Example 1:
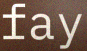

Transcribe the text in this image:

fay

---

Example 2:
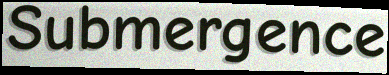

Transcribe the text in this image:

Submergence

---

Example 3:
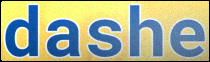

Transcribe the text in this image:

dashe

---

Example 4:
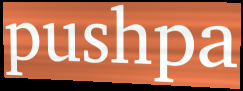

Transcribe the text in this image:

pushpa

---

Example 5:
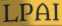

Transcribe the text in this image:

LPAI